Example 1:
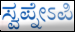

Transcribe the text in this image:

ಸ್ವಪ್ನೇಽಪಿ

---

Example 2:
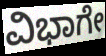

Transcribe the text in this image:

ವಿಭಾಗೇ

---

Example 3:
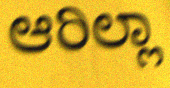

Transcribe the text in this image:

ಆರಿಲ್ಲಾ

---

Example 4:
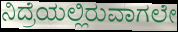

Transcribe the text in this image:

ನಿದ್ರೆಯಲ್ಲಿರುವಾಗಲೇ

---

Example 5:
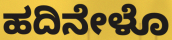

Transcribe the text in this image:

ಹದಿನೇಳೊ